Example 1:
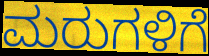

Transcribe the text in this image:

ಮರುಗಳಿಗೆ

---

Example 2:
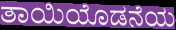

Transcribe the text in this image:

ತಾಯಿಯೊಡನೆಯ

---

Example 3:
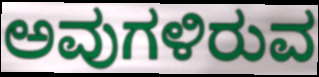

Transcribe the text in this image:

ಅವುಗಳಿರುವ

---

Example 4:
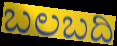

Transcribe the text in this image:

ಬಲಬದಿ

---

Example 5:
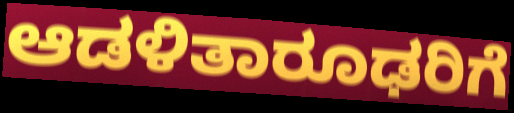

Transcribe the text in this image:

ಆಡಳಿತಾರೂಢರಿಗೆ